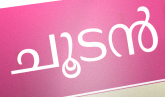
ചൂടൻ